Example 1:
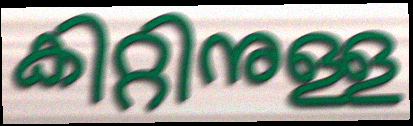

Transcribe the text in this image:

കിറ്റിനുള്ള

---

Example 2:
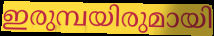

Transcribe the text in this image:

ഇരുമ്പയിരുമായി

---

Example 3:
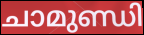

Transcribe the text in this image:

ചാമുണ്ഡി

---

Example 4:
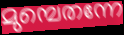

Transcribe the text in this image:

മുമ്പെതന്നേ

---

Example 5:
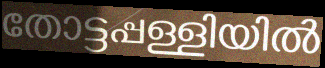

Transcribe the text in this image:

തോട്ടപ്പള്ളിയിൽ